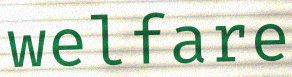
welfare